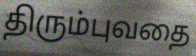
திரும்புவதை